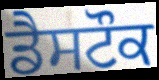
ਡੈਸਟੌਕ